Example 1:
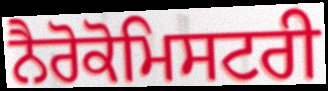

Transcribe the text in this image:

ਨੈਰੋਕੋਮਿਸਟਰੀ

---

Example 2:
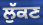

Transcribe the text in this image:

ਲੁੱਕਣ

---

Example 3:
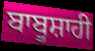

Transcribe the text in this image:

ਬਾਬੂਸ਼ਾਹੀ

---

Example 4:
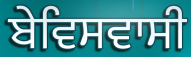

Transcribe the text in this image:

ਬੇਵਿਸਵਾਸੀ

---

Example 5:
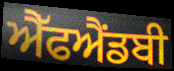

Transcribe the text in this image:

ਐੱਫਐਂਡਬੀ